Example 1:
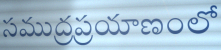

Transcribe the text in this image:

సముద్రప్రయాణంలో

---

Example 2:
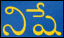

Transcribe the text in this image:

నిషే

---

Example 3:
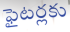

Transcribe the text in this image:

ఫైటర్లకు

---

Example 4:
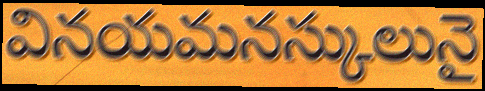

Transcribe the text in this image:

వినయమనస్కులునై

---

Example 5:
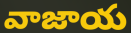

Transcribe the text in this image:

వాజాయ